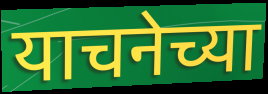
याचनेच्या